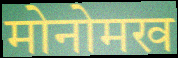
मोनोमख